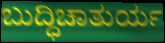
ಬುದ್ಧಿಚಾತುರ್ಯ